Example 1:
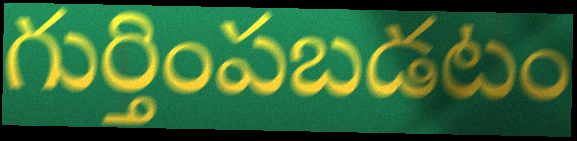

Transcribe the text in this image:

గుర్తింపబడటం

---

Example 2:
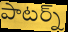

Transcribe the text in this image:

పాటర్న్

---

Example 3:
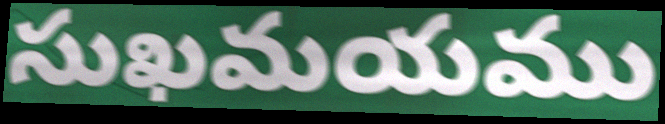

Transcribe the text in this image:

సుఖమయము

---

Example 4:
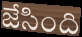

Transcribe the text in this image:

జేసింది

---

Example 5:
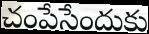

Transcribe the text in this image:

చంపేసేందుకు